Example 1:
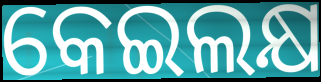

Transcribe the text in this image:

କେଇଲକ୍ଷ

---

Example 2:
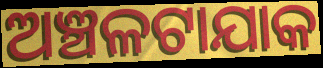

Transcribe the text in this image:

ଅଞ୍ଚଳଟାଯାକ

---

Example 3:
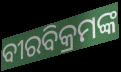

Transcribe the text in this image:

ବୀରବିକ୍ରମଙ୍କ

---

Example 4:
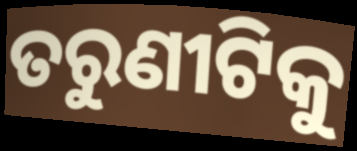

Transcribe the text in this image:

ତରୁଣୀଟିକୁ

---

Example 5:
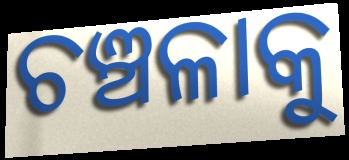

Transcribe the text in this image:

ଚଞ୍ଚଳାକୁ